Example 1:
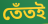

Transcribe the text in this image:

তেঁতই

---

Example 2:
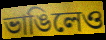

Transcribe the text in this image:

ভাঙিলেও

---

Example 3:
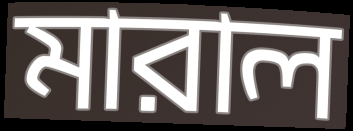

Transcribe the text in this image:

মারাল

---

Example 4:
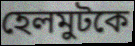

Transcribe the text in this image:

হেলমুটকে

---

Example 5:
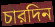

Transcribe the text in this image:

চারদিন